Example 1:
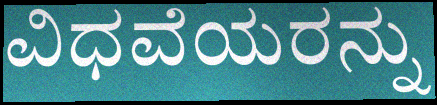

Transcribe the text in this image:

ವಿಧವೆಯರನ್ನು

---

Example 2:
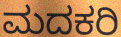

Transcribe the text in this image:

ಮದಕರಿ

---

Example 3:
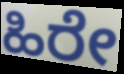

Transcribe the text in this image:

ಹಿರೇ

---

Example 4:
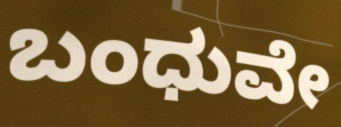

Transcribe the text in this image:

ಬಂಧುವೇ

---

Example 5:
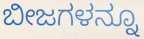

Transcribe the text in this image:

ಬೀಜಗಳನ್ನೂ